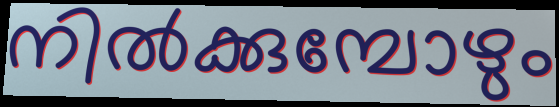
നിൽക്കുമ്പോഴും